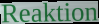
Reaktion